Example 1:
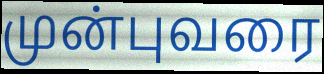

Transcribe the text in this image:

முன்புவரை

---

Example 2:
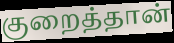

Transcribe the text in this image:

குறைத்தான்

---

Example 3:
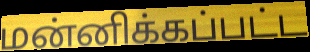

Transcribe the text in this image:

மன்னிக்கப்பட்ட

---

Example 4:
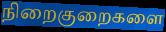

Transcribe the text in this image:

நிறைகுறைகளை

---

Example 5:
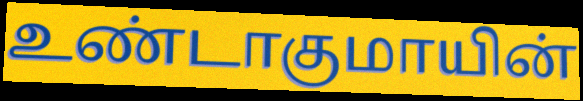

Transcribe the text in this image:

உண்டாகுமாயின்